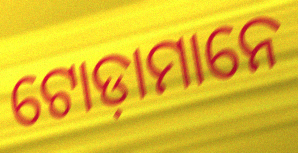
ଟୋଡ଼ାମାନେ